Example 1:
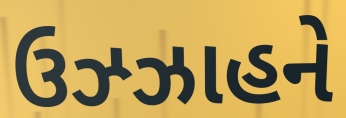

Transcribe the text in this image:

ઉઝ્ઝાહને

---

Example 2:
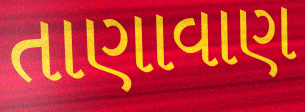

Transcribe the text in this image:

તાણાવાણ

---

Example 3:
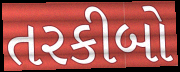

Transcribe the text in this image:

તરકીબો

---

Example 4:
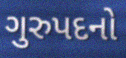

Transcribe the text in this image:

ગુરુપદનો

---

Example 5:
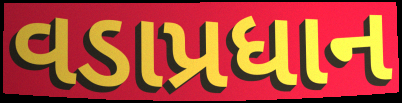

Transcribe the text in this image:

વડાપ્રધાન